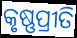
କୃଷ୍ଣପ୍ରୀତି